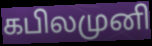
கபிலமுனி